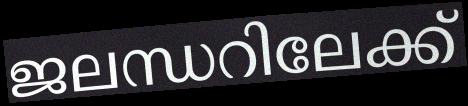
ജലന്ധറിലേക്ക്